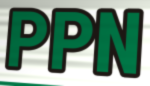
PPN